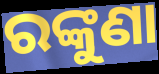
ରଙ୍କୁଣା